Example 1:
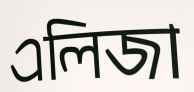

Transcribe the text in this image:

এলিজা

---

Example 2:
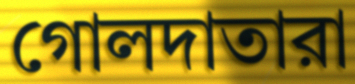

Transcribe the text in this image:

গোলদাতারা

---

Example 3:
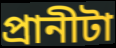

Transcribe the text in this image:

প্রানীটা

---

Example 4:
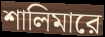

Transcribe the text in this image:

শালিমারে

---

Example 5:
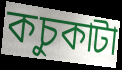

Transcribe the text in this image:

কচুকাটা